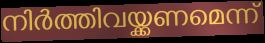
നിർത്തിവയ്ക്കണമെന്ന്